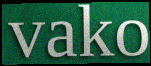
vako